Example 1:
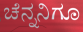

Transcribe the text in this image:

ಚೆನ್ನನಿಗೂ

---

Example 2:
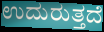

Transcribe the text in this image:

ಉದುರುತ್ತದೆ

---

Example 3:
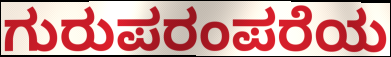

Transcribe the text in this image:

ಗುರುಪರಂಪರೆಯ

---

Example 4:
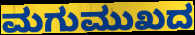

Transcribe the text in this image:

ಮಗುಮುಖದ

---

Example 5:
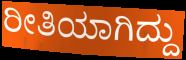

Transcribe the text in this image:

ರೀತಿಯಾಗಿದ್ದು